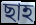
ছাহ